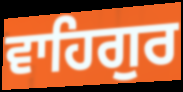
ਵਾਹਿਗੁਰ